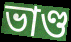
ভাণ্ড